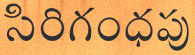
సిరిగంధపు